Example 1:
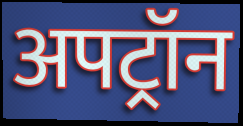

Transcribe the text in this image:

अपट्रॉन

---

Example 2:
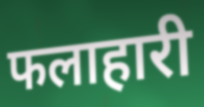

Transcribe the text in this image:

फलाहारी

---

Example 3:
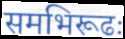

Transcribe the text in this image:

समभिरूढः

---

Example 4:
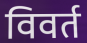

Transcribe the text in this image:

विवर्त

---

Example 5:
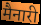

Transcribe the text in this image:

मैनारी